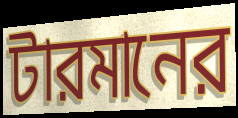
টারমানের